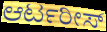
ಆರ್ಟರೀಸ್